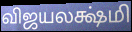
விஜயலக்ஷ்மி